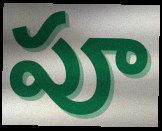
పూ